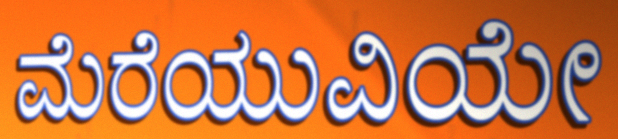
ಮೆರೆಯುವಿಯೇ